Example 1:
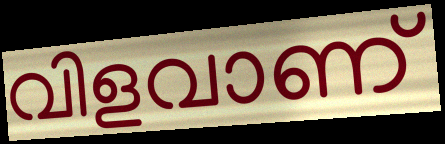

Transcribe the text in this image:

വിളവാണ്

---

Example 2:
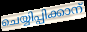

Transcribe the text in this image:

ചെയ്യിപ്പിക്കാന്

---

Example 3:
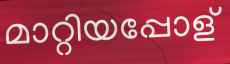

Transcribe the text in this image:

മാറ്റിയപ്പോള്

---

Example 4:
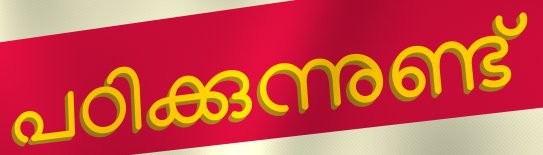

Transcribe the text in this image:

പഠിക്കുന്നുണ്ട്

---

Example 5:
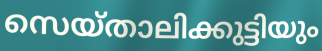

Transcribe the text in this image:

സെയ്താലിക്കുട്ടിയും